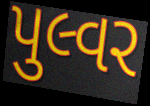
પુલ્વર